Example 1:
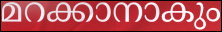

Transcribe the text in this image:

മറക്കാനാകും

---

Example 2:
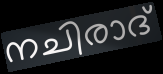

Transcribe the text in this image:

നചിരാദ്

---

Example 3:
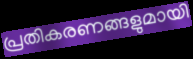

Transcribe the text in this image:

പ്രതികരണങ്ങളുമായി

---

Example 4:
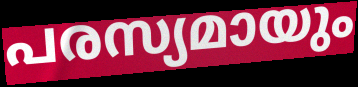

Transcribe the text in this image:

പരസ്യമായും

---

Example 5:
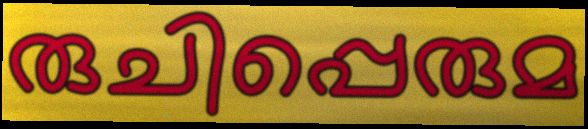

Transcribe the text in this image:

രുചിപ്പെരുമ